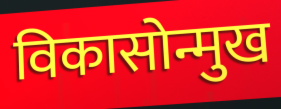
विकासोन्मुख